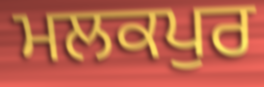
ਮਲਕਪੁਰ